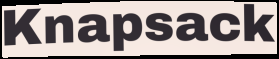
Knapsack